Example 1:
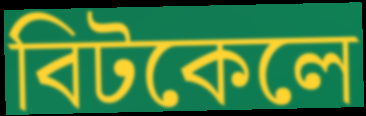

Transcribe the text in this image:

বিটকেলে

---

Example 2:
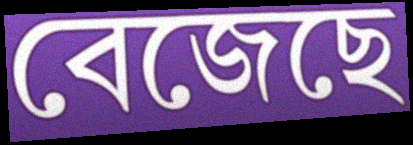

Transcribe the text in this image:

বেজেছে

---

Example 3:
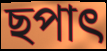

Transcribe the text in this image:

ছপাৎ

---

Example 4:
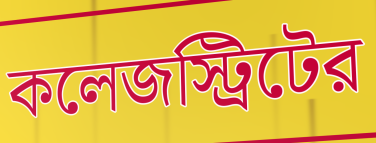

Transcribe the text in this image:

কলেজস্ট্রিটের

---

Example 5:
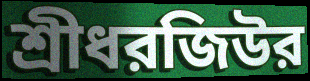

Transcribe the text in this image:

শ্রীধরজিউর